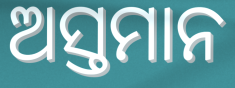
ଅସ୍ତମାନ